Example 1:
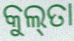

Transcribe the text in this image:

କୁଲ୍‌ତା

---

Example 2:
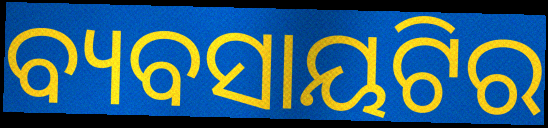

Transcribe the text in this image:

ବ୍ୟବସାୟଟିର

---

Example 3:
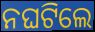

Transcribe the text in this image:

ନଘଟିଲେ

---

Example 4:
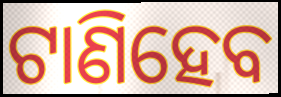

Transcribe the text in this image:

ଟାଣିହେବ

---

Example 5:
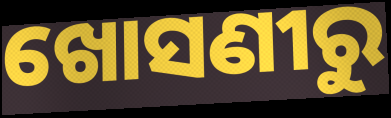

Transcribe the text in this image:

ଖୋସଣୀରୁ